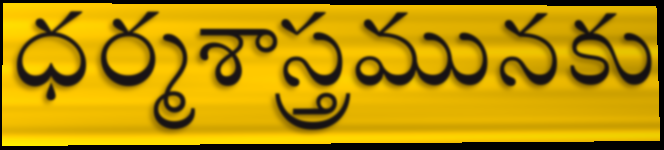
ధర్మశాస్త్రమునకు